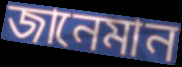
জানেমান